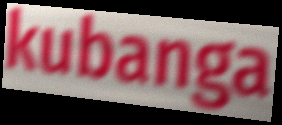
kubanga